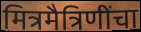
मित्रमैत्रिणींचा